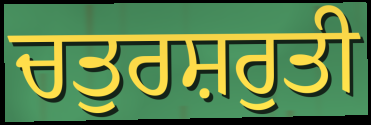
ਚਤੁਰਸ਼ਰੁਤੀ